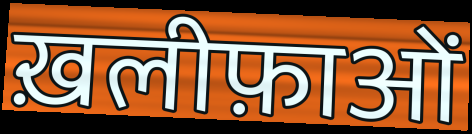
ख़लीफ़ाओं